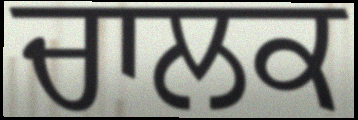
ਚਾਲਕ